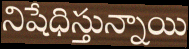
నిషేధిస్తున్నాయి